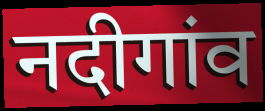
नदीगांव